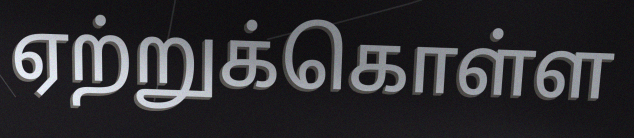
ஏற்றுக்கொள்ள